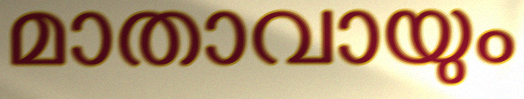
മാതാവായും